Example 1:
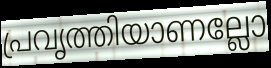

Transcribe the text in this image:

പ്രവൃത്തിയാണല്ലോ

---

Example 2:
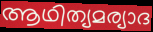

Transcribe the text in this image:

ആഥിത്യമര്യാദ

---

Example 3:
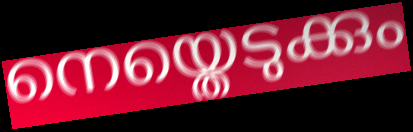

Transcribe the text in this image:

നെയ്തെടുക്കും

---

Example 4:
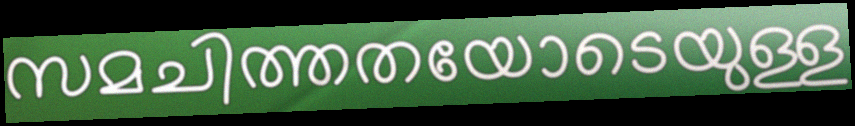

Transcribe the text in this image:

സമചിത്തതയോടെയുള്ള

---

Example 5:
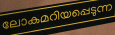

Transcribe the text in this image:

ലോകമറിയപ്പെടുന്ന